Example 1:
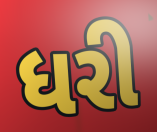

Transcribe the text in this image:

ધરી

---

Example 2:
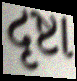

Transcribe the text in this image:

દૃષ્ટા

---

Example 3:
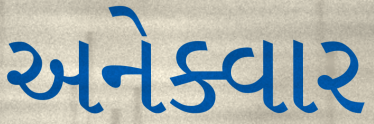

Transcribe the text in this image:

અનેક્વાર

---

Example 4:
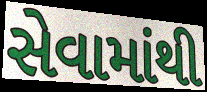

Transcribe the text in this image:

સેવામાંથી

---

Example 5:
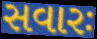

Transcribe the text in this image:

સવારઃ